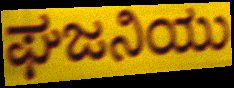
ಘಜನಿಯು